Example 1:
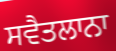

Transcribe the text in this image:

ਸਵੈਤਲਾਨਾ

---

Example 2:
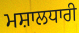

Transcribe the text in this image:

ਮਸ਼ਾਲਧਾਰੀ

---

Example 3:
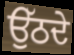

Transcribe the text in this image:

ਉੱਠਦੇ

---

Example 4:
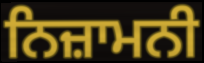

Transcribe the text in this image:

ਨਿਜ਼ਾਮਨੀ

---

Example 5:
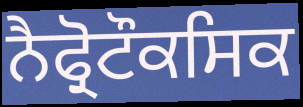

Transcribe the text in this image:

ਨੈਫ੍ਰੋਟੌਕਸਿਕ